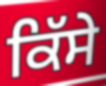
ਕਿੱਸੇ